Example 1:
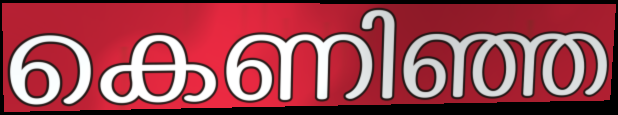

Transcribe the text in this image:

കെണിഞ്ഞ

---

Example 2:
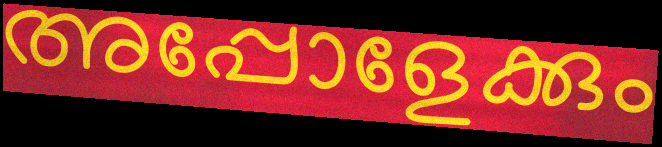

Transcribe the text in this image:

അപ്പോളേക്കും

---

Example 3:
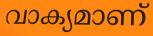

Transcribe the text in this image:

വാക്യമാണ്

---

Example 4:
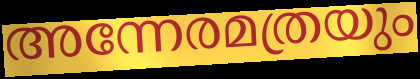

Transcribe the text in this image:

അന്നേരമത്രയും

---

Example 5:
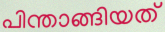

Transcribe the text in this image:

പിന്താങ്ങിയത്